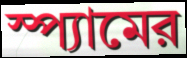
স্প্যামের